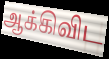
ஆக்கிவிட